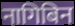
नागिबिन